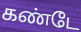
கண்டே